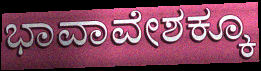
ಭಾವಾವೇಶಕ್ಕೂ